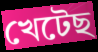
খেটেছ